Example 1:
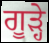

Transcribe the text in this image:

ਗੂੜ੍ਹੇ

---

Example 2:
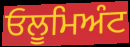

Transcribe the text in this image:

ਓਲੂਮਿਅੰਟ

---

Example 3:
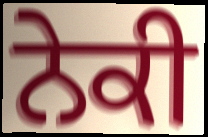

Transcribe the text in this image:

ਨੇਕੀ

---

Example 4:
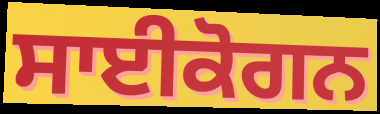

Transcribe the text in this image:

ਸਾਈਕੋਗਨ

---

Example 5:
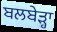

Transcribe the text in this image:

ਬਲਬੇੜ੍ਹਾ